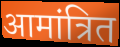
आमांत्रित